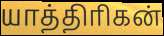
யாத்திரிகன்